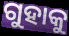
ଗୁହାକୁ